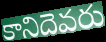
కానిదెవరు